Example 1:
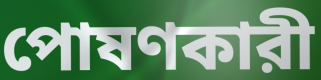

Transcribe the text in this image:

পোষণকারী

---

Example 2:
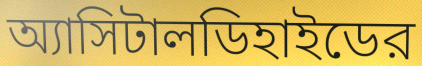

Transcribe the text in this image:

অ্যাসিটালডিহাইডের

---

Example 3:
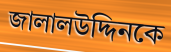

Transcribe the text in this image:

জালালউদ্দিনকে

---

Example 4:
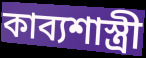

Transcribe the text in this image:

কাব্যশাস্ত্রী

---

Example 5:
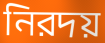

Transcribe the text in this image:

নিরদয়